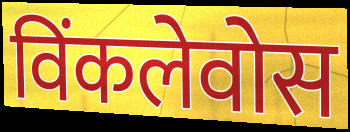
विंकलेवोस